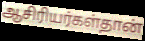
ஆசிரியர்கள்தான்